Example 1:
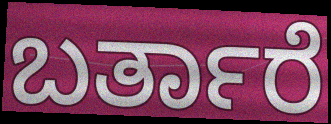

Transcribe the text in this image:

ಬರ್ತಾರೆ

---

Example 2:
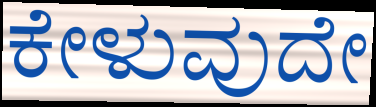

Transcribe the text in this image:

ಕೇಳುವುದೇ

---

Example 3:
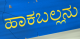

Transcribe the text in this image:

ಹಾಕಬಲ್ಲನು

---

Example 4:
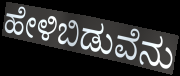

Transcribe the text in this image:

ಹೇಳಿಬಿಡುವೆನು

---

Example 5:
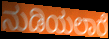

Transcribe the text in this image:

ನುಡಿಯಲಾರೆ